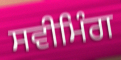
ਸਵੀਮਿੰਗ